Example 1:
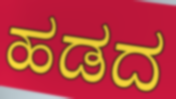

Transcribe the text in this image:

ಹಡದ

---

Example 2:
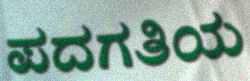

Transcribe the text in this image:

ಪದಗತಿಯ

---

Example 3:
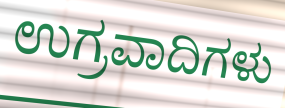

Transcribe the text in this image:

ಉಗ್ರವಾದಿಗಳು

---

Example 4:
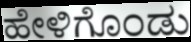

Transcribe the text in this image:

ಹೇಳಿಗೊಂಡು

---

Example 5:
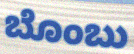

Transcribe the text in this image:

ಬೊಂಬು